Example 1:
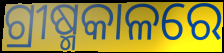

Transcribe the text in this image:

ଗ୍ରୀଷ୍ମକାଳରେ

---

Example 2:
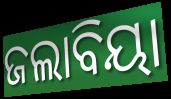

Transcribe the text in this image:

ଜଲାବିୟା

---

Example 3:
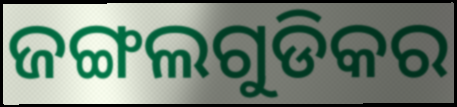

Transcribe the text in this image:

ଜଙ୍ଗଲଗୁଡିକର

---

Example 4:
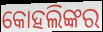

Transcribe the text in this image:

କୋହଲିଙ୍କର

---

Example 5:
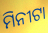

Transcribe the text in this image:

ମିନୀଟା